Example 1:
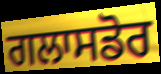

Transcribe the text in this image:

ਗਲਾਸਡੋਰ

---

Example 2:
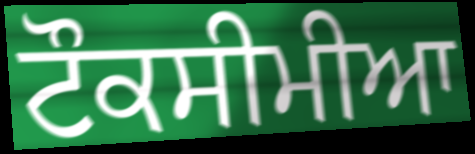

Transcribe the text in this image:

ਟੌਕਸੀਮੀਆ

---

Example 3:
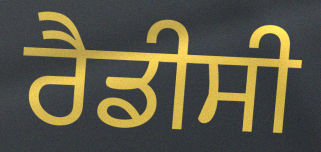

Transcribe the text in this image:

ਰੈਡੀਸੀ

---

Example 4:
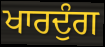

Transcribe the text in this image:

ਖਾਰਦੁੰਗ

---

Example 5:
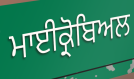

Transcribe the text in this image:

ਮਾਈਕ੍ਰੋਬਿਅਲ